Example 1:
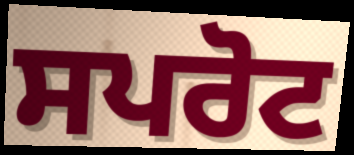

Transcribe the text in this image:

ਸਪਰੋਟ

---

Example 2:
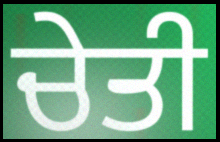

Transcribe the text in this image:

ਚੇਤੀ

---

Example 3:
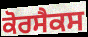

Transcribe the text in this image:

ਕੋਰਸੈਕਸ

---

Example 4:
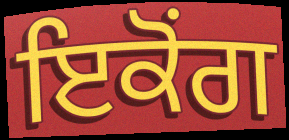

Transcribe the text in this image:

ਇਕੋਂਗ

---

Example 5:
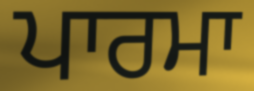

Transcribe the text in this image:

ਪਾਰਮਾ